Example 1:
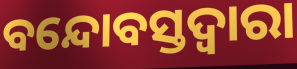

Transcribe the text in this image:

ବନ୍ଦୋବସ୍ତଦ୍ୱାରା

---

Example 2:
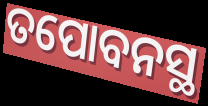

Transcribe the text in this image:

ତପୋବନସ୍ଥ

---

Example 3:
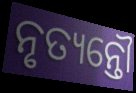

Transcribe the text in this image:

ନୃତ୍ୟନ୍ତୌ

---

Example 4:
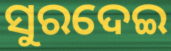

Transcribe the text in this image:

ସୁରଦେଇ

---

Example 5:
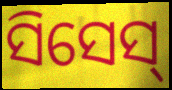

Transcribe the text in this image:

ସିସେସ୍